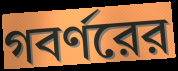
গবর্ণরের